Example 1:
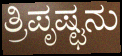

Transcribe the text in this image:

ತ್ರಿಪೃಷ್ಟನು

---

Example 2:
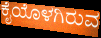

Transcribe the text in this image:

ಕೈಯೊಳಗಿರುವ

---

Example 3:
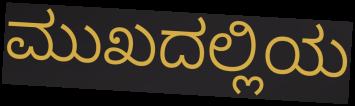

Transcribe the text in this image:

ಮುಖದಲ್ಲಿಯ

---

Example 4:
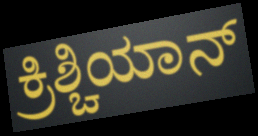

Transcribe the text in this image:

ಕ್ರಿಶ್ಚಿಯಾನ್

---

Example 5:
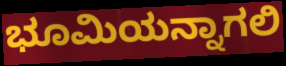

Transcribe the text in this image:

ಭೂಮಿಯನ್ನಾಗಲಿ